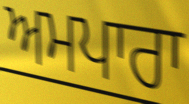
ਅਮਪਾਰਾ